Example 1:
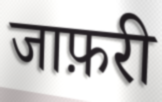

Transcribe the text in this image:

जाफ़री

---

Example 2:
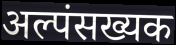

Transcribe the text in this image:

अल्पंसख्यक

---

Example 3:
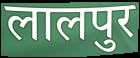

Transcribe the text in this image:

लालपुर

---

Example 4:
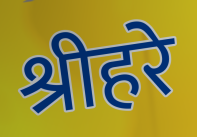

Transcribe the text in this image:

श्रीहरे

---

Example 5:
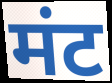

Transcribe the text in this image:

मंट